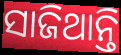
ସାଜିଥାନ୍ତି